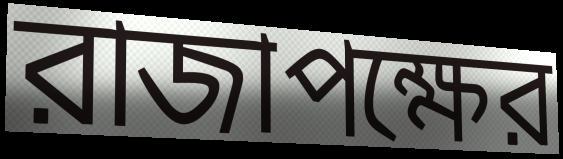
রাজাপক্ষের